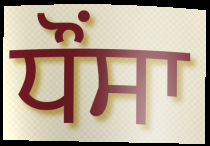
ਧੌਂਸਾ